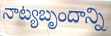
నాట్యబృందాన్ని